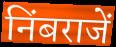
निंबराजें